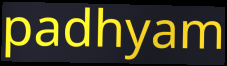
padhyam